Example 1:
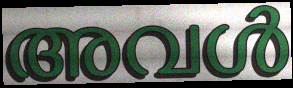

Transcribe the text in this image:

അവൾ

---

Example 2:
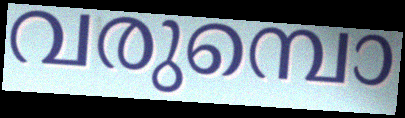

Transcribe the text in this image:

വരുമ്പൊ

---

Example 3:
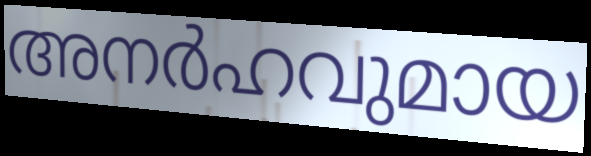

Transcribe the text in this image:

അനർഹവുമായ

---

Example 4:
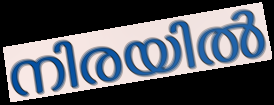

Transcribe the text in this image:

നിരയിൽ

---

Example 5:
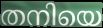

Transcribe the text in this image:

തനിയെ